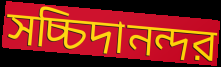
সচ্চিদানন্দর